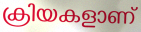
ക്രിയകളാണ്